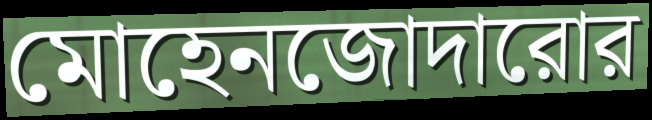
মোহেনজোদারোর